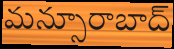
మన్సూరాబాద్